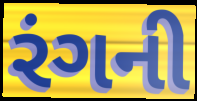
રંગની